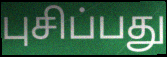
புசிப்பது